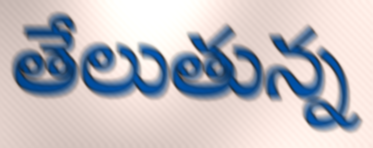
తేలుతున్న